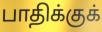
பாதிக்குக்